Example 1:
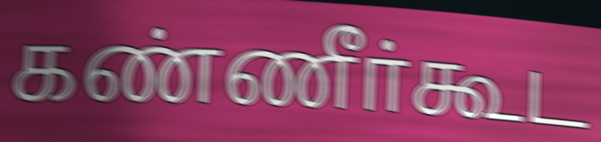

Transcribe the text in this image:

கண்ணீர்கூட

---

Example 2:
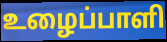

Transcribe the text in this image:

உழைப்பாளி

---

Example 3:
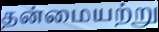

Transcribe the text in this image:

தன்மையற்று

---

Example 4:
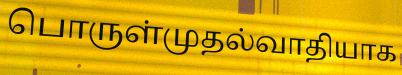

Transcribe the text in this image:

பொருள்முதல்வாதியாக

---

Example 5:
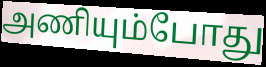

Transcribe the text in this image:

அணியும்போது